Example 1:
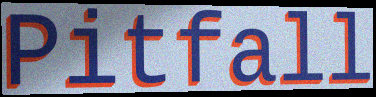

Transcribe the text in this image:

Pitfall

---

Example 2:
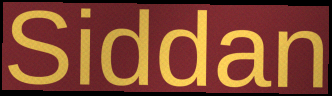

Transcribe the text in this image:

Siddan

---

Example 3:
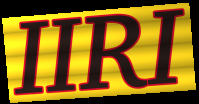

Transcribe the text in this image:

IIRI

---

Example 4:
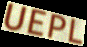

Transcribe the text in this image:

UEPL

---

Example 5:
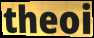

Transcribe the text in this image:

theoi